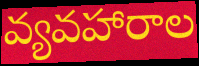
వ్యవహారాల